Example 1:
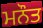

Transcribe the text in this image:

ਮਨੌਤ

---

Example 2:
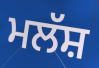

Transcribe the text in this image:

ਮਲੱਸ਼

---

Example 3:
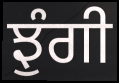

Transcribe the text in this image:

ਝੁੰਗੀ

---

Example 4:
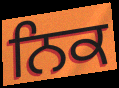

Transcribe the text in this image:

ਨਿਕ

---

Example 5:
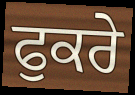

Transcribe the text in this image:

ਫੁਕਰੇ